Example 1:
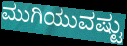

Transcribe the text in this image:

ಮುಗಿಯುವಷ್ಟು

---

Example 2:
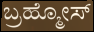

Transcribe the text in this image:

ಬ್ರಹ್ಮೋಸ್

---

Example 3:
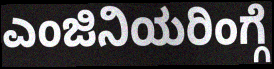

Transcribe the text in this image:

ಎಂಜಿನಿಯರಿಂಗ್ಗೆ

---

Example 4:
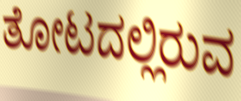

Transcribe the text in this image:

ತೋಟದಲ್ಲಿರುವ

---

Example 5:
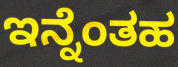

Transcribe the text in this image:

ಇನ್ನೆಂತಹ